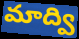
మాద్వి